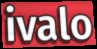
ivalo